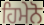
ਹਿਮੇਨੋ